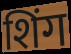
शिंग